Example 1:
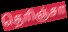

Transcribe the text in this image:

தெரிஞ்சா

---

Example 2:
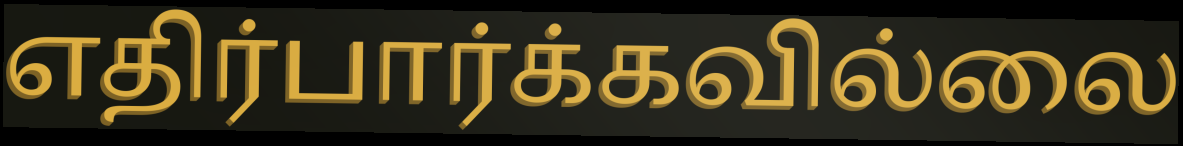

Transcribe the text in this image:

எதிர்பார்க்கவில்லை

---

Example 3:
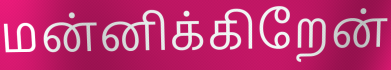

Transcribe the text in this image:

மன்னிக்கிறேன்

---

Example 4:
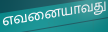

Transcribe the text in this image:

எவனையாவது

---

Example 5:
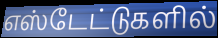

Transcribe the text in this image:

எஸ்டேட்டுகளில்